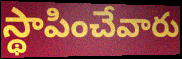
స్థాపించేవారు